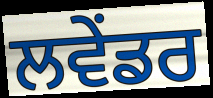
ਲਵੇਂਡਰ